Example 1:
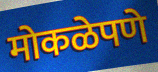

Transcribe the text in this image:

मोकळेपणे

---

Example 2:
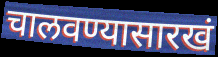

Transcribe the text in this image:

चालवण्यासारखं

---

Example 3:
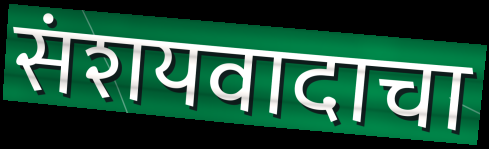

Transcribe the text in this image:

संशयवादाचा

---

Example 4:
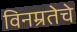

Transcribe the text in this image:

विनम्रतेचे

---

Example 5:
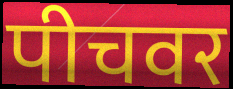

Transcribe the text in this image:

पीचवर